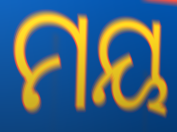
ମୟ